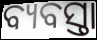
ବ୍ୟବସ୍ତା